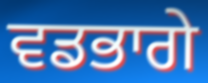
ਵਡਭਾਗੇ